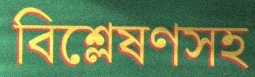
বিশ্লেষণসহ